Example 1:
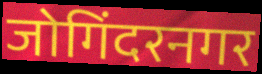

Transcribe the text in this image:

जोगिंदरनगर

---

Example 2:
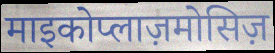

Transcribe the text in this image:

माइकोप्लाज़मोसिज़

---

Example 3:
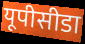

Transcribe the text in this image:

यूपीसीडा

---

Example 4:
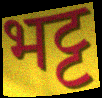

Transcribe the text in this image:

भट्ट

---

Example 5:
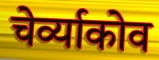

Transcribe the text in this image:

चेर्व्याकोव